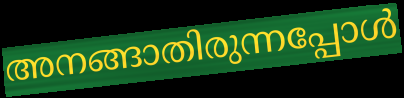
അനങ്ങാതിരുന്നപ്പോൾ